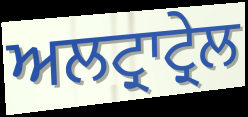
ਅਲਟ੍ਰਾਟ੍ਰੇਲ